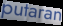
putaran